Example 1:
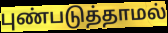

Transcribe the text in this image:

புண்படுத்தாமல்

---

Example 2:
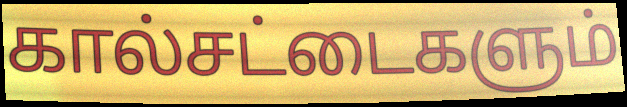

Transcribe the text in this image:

கால்சட்டைகளும்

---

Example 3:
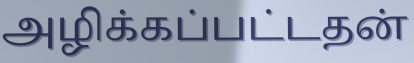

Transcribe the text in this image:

அழிக்கப்பட்டதன்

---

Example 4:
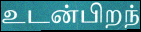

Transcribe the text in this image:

உடன்பிறந்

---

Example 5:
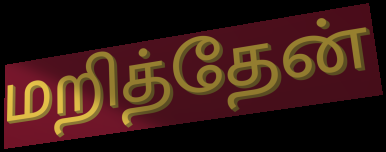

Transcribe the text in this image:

மறித்தேன்